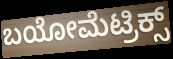
ಬಯೋಮೆಟ್ರಿಕ್ಸ್